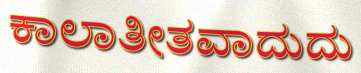
ಕಾಲಾತೀತವಾದುದು